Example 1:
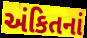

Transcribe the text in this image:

અંકિતનાં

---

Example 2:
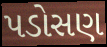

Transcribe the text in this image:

પડોસણ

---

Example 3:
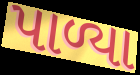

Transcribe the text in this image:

પાળ્યા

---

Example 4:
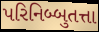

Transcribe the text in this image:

પરિનિબ્બુતત્તા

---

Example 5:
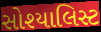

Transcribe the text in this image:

સોશ્યાલિસ્ટ